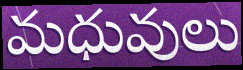
మధువులు